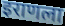
इराणला